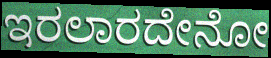
ಇರಲಾರದೇನೋ